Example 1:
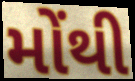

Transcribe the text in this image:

મોંથી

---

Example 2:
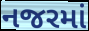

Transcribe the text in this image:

નજરમાં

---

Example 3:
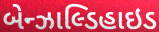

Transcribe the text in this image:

બેન્ઝાલ્ડિહાઇડ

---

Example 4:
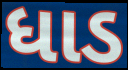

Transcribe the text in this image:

ધાડ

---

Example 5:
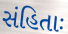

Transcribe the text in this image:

સંહિતાઃ